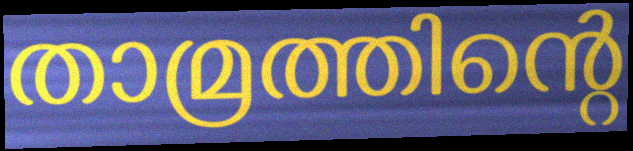
താമ്രത്തിന്റെ